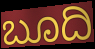
ಬೂದಿ